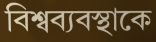
বিশ্বব্যবস্থাকে